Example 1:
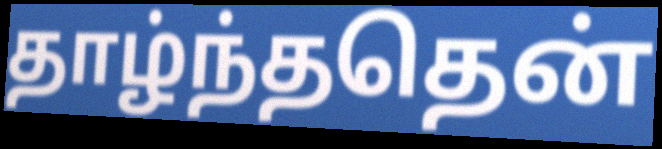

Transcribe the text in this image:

தாழ்ந்ததென்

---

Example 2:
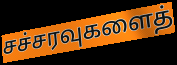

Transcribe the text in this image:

சச்சரவுகளைத்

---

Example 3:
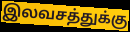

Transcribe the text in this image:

இலவசத்துக்கு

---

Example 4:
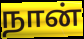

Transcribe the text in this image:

நான்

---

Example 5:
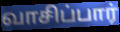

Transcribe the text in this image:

வாசிப்பார்